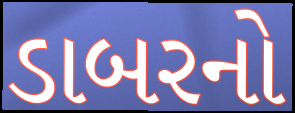
ડાબરનો